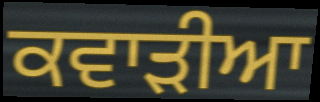
ਕਵਾੜੀਆ